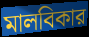
মালবিকার